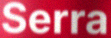
Serra